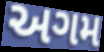
અગમ